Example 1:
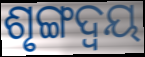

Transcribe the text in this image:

ଶୃଙ୍ଗଦ୍ୱୟ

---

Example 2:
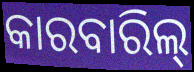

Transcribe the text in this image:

କାରବାରିଲ୍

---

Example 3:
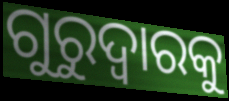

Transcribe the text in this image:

ଗୁରୁଦ୍ୱାରକୁ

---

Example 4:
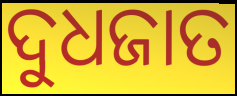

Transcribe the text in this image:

ଦୁଧଜାତ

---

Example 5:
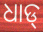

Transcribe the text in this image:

ଧାଡ୍